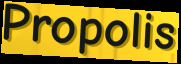
Propolis